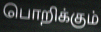
பொறிக்கும்